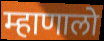
म्हाणालो